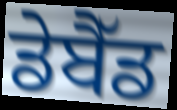
ਡੇਬੈੱਡ